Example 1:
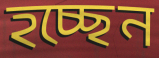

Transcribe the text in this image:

হচ্ছেন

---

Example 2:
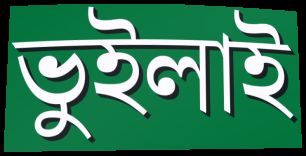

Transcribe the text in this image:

ভুইলাই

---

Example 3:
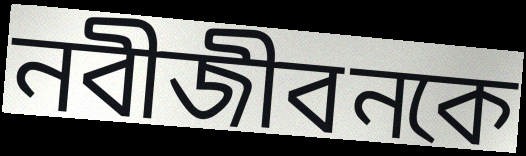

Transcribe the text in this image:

নবীজীবনকে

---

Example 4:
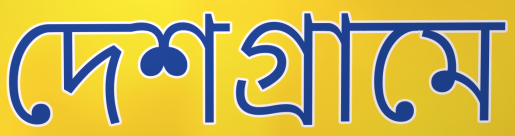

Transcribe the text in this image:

দেশগ্রামে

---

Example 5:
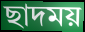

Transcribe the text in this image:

ছাদময়